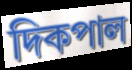
দিকপাল